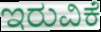
ಇರುವಿಕೆ